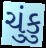
ચુંકુ